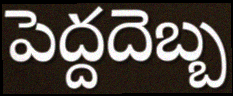
పెద్దదెబ్బ